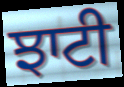
ਝਾਟੀ